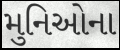
મુનિઓના